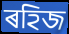
ৰহিজ